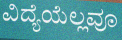
ವಿದ್ಯೆಯೆಲ್ಲವೂ